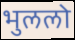
भुललो